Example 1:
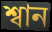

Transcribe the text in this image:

শ্বান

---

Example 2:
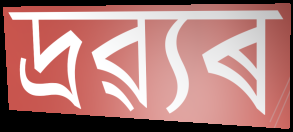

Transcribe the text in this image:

দ্ৰৱ্যৰ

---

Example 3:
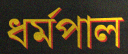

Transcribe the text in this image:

ধৰ্মপাল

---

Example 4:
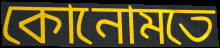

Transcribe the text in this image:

কোনোমতে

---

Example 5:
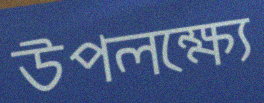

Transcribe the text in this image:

উপলক্ষ্যে